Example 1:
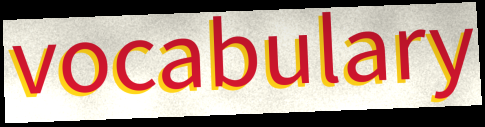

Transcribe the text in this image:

vocabulary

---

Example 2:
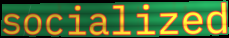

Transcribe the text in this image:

socialized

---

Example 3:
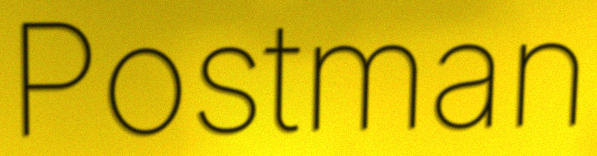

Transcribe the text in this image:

Postman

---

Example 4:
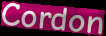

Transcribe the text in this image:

Cordon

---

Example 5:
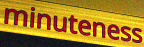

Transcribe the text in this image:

minuteness